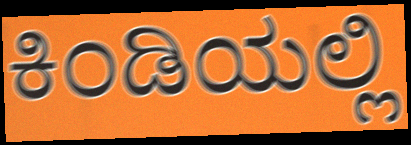
ಕಿಂಡಿಯಲ್ಲಿ